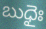
బుధైః